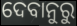
ଦେବାନୁରୁ